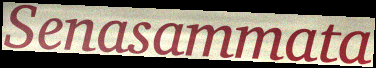
Senasammata